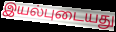
இயல்புடையது